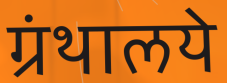
ग्रंथालये